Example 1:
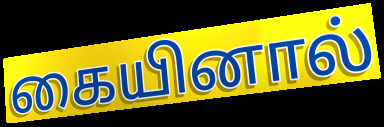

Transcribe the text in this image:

கையினால்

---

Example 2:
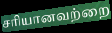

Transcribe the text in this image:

சரியானவற்றை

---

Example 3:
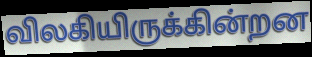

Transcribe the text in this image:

விலகியிருக்கின்றன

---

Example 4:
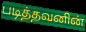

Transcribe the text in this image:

படித்தவனின்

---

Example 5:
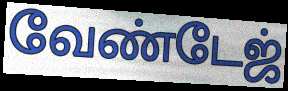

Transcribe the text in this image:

வேண்டேஜ்